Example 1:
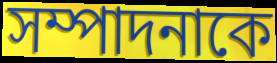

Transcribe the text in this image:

সম্পাদনাকে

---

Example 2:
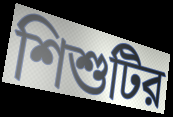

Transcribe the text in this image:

শিশুটির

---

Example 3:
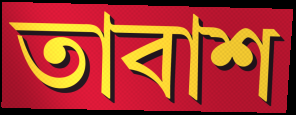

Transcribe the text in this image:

তাবাশ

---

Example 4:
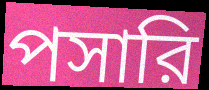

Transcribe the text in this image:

পসারি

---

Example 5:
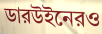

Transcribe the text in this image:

ডারউইনেরও